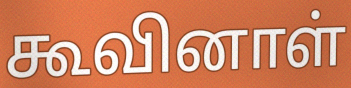
கூவினாள்